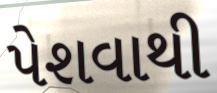
પેશવાથી